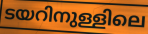
ടയറിനുള്ളിലെ